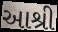
આશ્રી